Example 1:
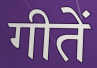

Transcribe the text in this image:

गीतें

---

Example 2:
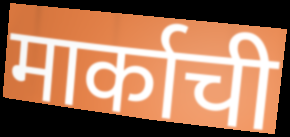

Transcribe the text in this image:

मार्काची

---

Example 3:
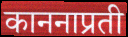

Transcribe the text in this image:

काननाप्रती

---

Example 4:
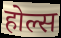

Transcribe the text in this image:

होल्स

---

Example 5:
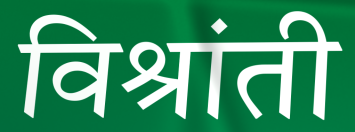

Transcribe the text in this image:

विश्रांती